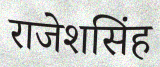
राजेशसिंह